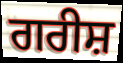
ਗਰੀਸ਼